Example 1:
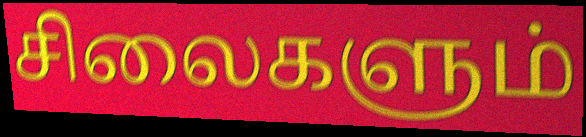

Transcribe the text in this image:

சிலைகளும்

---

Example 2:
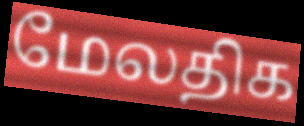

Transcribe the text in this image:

மேலதிக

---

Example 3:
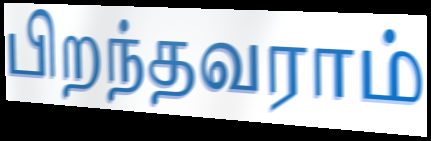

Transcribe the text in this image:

பிறந்தவராம்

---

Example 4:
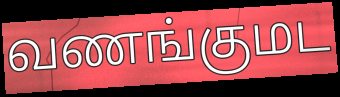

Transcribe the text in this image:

வணங்குமட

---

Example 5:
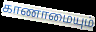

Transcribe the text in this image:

காணாமையும்